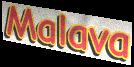
Malava